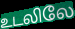
உடலிலே